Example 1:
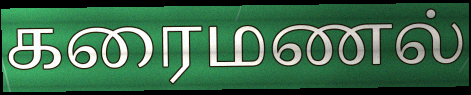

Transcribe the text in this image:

கரைமணல்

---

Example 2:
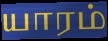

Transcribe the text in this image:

யாரம்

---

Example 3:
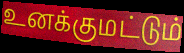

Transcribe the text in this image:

உனக்குமட்டும்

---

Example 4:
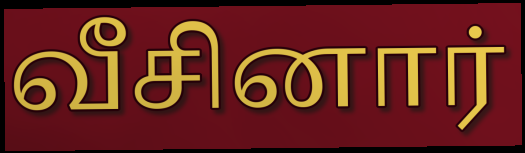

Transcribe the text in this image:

வீசினார்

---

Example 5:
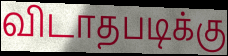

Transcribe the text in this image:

விடாதபடிக்கு